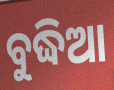
ବୁଦ୍ଧିଆ